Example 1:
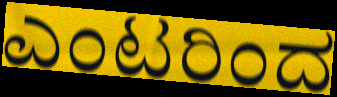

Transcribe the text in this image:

ಎಂಟರಿಂದ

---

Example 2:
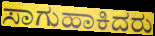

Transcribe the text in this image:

ಸಾಗುಹಾಕಿದರು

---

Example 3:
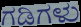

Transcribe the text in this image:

ಗಡಿಗಳು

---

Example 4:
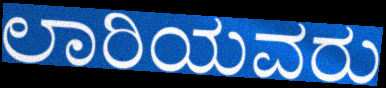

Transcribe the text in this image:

ಲಾರಿಯವರು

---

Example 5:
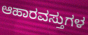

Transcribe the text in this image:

ಆಹಾರವಸ್ತುಗಳ